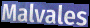
Malvales